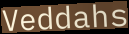
Veddahs